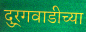
दुर्गवाडीच्या